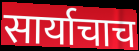
सार्याचाच